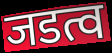
जडत्व